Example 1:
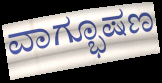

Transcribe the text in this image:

ವಾಗ್ಭೂಷಣ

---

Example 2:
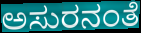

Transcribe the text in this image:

ಅಸುರನಂತೆ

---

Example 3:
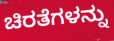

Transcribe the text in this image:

ಚಿರತೆಗಳನ್ನು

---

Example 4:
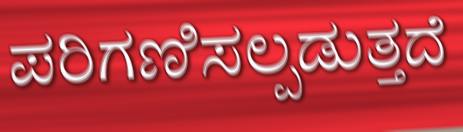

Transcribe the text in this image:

ಪರಿಗಣಿಸಲ್ಪಡುತ್ತದೆ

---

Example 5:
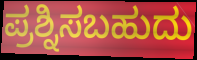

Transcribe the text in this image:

ಪ್ರಶ್ನಿಸಬಹುದು